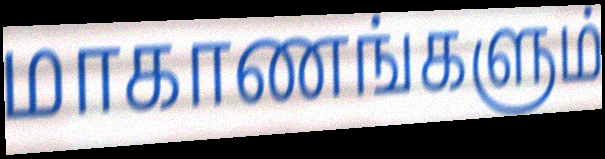
மாகாணங்களும்